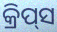
କ୍ରିପ୍‍ସ